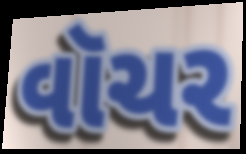
વૉચર